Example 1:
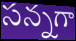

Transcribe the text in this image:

సన్నగా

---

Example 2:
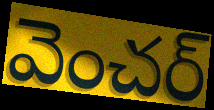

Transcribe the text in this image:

వెంచర్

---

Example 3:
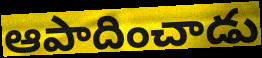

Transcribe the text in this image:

ఆపాదించాడు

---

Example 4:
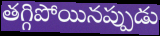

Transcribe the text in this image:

తగ్గిపోయినప్పుడు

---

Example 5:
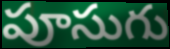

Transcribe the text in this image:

పూసుగు